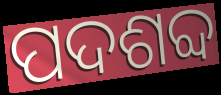
ପଦଶବ୍ଦ